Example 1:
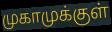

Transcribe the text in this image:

முகாமுக்குள்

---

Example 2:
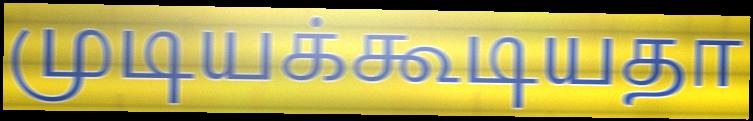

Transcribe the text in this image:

முடியக்கூடியதா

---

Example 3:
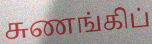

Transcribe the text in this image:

சுணங்கிப்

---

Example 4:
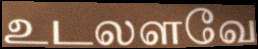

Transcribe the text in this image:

உடலளவே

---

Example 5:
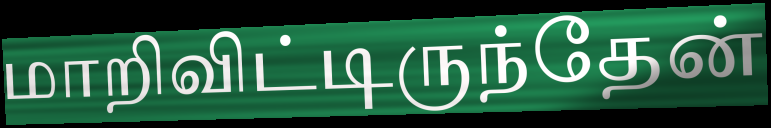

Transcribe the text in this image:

மாறிவிட்டிருந்தேன்